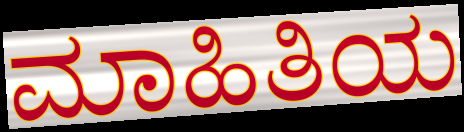
ಮಾಹಿತಿಯ